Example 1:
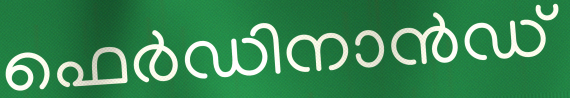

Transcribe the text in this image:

ഫെർഡിനാൻഡ്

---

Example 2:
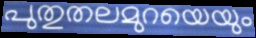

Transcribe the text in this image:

പുതുതലമുറയെയും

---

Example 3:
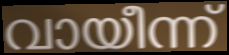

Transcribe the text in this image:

വായീന്ന്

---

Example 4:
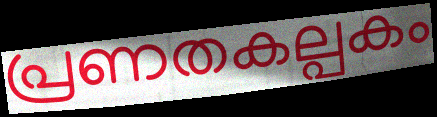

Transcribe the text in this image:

പ്രണതകല്പകം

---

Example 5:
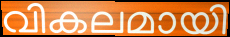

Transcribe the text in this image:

വികലമായി